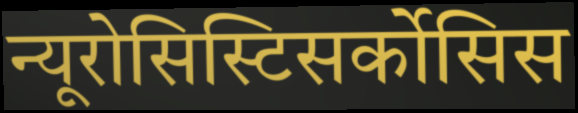
न्यूरोसिस्टिसर्कोसिस